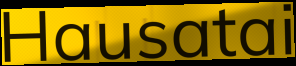
Hausatai